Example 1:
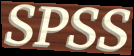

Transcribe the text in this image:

SPSS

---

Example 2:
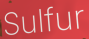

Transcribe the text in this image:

Sulfur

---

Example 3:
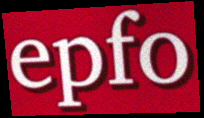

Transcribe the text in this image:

epfo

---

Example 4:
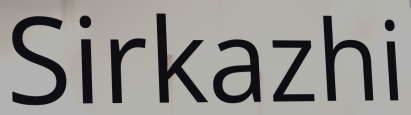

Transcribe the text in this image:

Sirkazhi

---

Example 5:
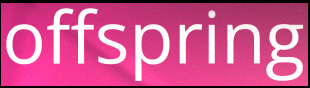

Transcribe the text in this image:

offspring